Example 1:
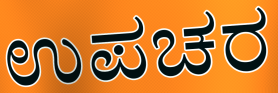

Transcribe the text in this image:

ಉಪಚರ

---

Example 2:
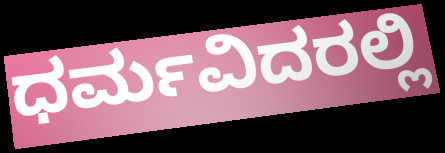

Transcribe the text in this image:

ಧರ್ಮವಿದರಲ್ಲಿ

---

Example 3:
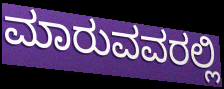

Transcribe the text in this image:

ಮಾರುವವರಲ್ಲಿ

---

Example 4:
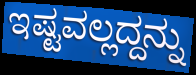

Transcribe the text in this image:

ಇಷ್ಟವಲ್ಲದ್ದನ್ನು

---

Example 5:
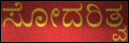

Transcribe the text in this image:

ಸೋದರಿತ್ವ